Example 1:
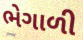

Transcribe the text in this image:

ભેગાળી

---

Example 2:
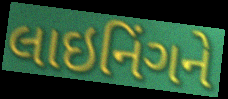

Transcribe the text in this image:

લાઇનિંગને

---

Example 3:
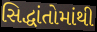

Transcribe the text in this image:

સિદ્ધાંતોમાંથી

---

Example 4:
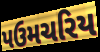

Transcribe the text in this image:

પઉમચરિય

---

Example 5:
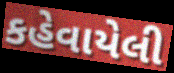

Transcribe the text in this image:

કહેવાયેલી